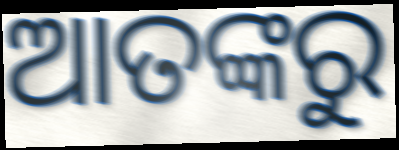
ଆତଙ୍କରୁ